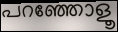
പറഞ്ഞോളൂ